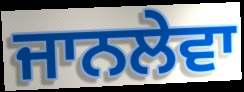
ਜਾਨਲੇਵਾ